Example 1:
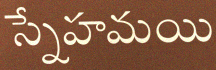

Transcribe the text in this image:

స్నేహమయి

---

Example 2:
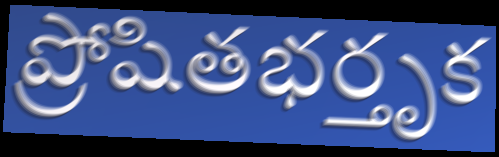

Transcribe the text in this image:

ప్రోషితభర్తృక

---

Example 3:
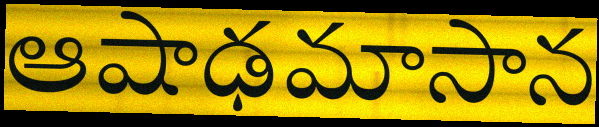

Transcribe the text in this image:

ఆషాఢమాసాన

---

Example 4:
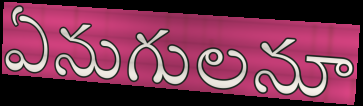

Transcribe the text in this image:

ఏనుగులనూ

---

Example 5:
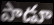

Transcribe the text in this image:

పాడూ